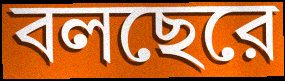
বলছেরে